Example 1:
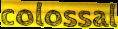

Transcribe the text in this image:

colossal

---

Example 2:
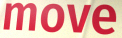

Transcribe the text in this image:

move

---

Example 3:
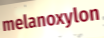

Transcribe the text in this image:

melanoxylon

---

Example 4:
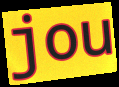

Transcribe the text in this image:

jou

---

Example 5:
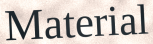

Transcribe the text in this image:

Material